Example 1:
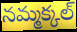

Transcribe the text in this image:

నమ్మక్కల్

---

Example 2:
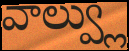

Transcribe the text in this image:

వాల్వ్లు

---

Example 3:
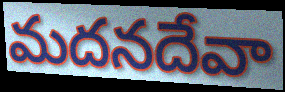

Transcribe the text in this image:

మదనదేవా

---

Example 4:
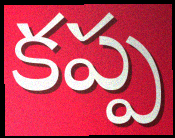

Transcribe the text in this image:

కప్ప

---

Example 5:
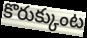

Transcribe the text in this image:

కొరుక్కుంట